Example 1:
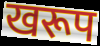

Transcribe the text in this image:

खरूप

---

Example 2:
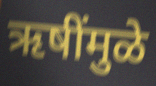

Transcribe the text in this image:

ऋषींमुळे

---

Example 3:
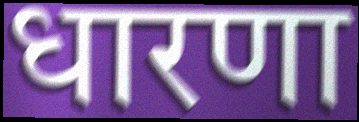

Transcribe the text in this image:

धारणा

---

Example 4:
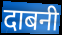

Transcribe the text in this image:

दाबनी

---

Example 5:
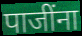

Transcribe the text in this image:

पाजींना